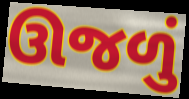
ઊજળું